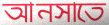
আনসাতে